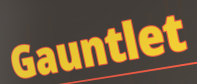
Gauntlet